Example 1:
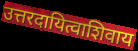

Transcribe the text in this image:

उत्तरदायित्वाशिवाय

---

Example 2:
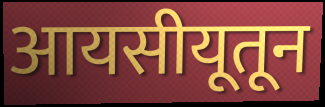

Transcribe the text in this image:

आयसीयूतून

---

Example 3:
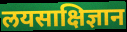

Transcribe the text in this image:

लयसाक्षिज्ञान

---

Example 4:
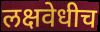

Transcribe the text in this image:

लक्षवेधीच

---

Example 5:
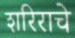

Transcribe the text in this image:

शरिराचे